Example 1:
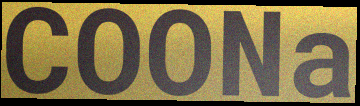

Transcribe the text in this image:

COONa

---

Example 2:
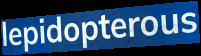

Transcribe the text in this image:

lepidopterous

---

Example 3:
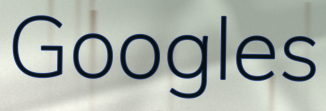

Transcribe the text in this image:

Googles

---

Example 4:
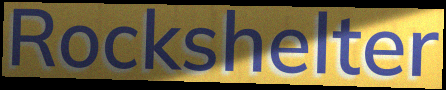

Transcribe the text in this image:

Rockshelter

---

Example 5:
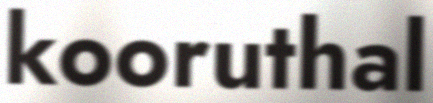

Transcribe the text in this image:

kooruthal